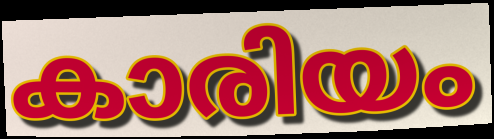
കാരിയം